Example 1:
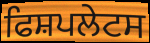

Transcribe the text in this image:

ਫਿਸ਼ਪਲੇਟਸ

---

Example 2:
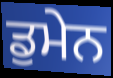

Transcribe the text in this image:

ਡੁਮੇਨ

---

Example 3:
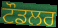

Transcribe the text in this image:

ਟੌਡਲਰ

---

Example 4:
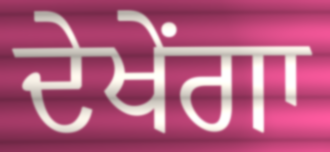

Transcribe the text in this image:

ਦੇਖੇਂਗਾ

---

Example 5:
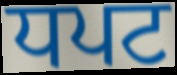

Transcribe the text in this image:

ਧਪਟ